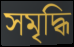
সমৃদ্ধি